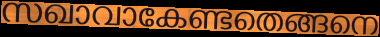
സഖാവാകേണ്ടതെങ്ങനെ